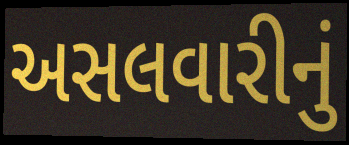
અસલવારીનું